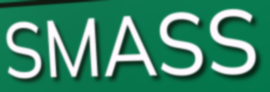
SMASS